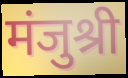
मंजुश्री